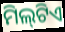
ମିଲ୍‌ଟିଏ